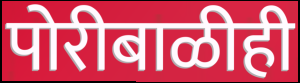
पोरीबाळीही